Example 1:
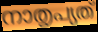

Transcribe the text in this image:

നാതൃപ്യത്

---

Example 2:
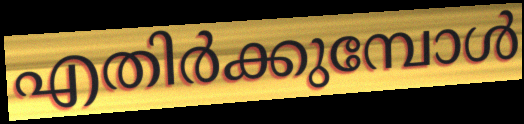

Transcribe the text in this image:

എതിർക്കുമ്പോൾ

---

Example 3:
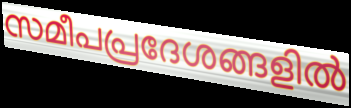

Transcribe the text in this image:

സമീപപ്രദേശങ്ങളിൽ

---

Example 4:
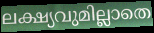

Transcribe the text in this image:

ലക്ഷ്യവുമില്ലാതെ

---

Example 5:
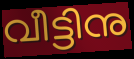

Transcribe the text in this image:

വീട്ടിനു